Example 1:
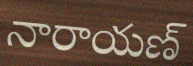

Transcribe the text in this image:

నారాయణ్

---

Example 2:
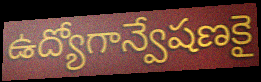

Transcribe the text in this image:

ఉద్యోగాన్వేషణకై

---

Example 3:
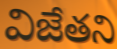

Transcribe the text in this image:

విజేతని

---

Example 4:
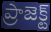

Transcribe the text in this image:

ప్రాజెక్ట్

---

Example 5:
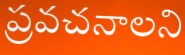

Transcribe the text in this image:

ప్రవచనాలని